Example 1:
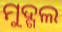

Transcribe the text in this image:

ମୁଦ୍ଗଲ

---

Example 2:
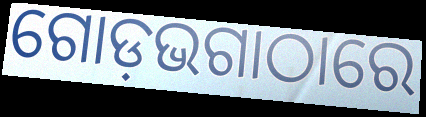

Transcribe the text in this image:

ଗୋଡ଼ଭଗାଠାରେ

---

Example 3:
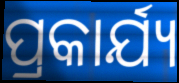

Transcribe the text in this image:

ପ୍ରକାର୍ଯ୍ୟ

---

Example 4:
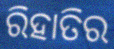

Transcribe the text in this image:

ରିହାତିର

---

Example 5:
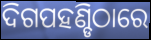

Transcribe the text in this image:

ଦିଗପହଣ୍ଡିଠାରେ